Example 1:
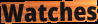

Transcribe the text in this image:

Watches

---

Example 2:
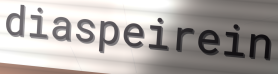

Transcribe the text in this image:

diaspeirein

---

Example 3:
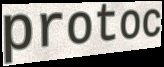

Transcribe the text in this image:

protoc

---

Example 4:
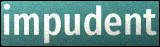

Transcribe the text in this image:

impudent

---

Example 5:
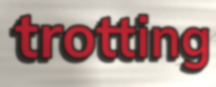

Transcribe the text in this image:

trotting